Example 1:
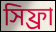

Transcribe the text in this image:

সিফ্রা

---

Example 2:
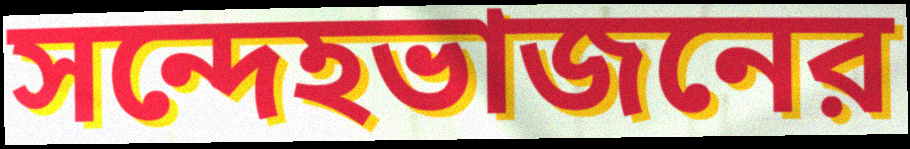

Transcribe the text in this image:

সন্দেহভাজনের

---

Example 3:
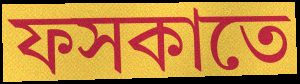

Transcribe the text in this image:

ফসকাতে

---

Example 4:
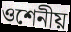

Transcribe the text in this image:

ওশেনীয়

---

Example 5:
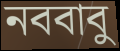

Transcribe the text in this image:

নববাবু